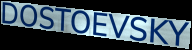
DOSTOEVSKY